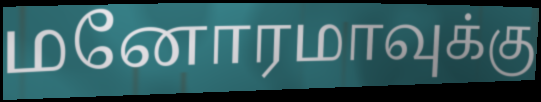
மனோரமாவுக்கு